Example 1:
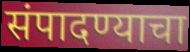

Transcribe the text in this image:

संपादण्याचा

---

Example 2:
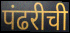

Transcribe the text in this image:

पंढरीची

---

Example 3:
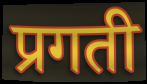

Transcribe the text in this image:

प्रगती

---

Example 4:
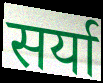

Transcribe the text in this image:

सर्या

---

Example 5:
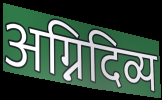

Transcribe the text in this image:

अग्निदिव्य